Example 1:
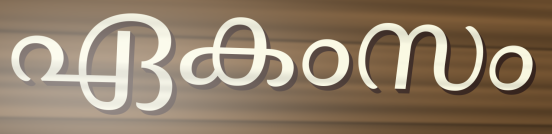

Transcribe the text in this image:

ഏകംസം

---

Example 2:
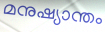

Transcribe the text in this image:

മനുഷ്യാന്തം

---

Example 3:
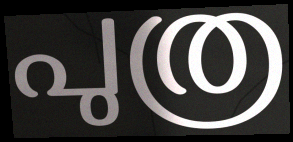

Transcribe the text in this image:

പുത്ര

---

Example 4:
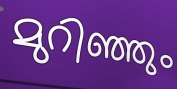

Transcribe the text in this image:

മുറിഞ്ഞും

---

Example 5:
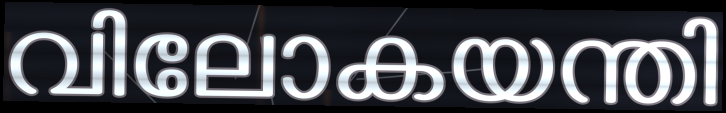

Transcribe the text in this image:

വിലോകയന്തി